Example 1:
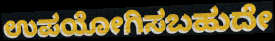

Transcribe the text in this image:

ಉಪಯೋಗಿಸಬಹುದೇ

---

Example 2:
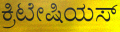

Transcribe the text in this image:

ಕ್ರಿಟೇಷಿಯಸ್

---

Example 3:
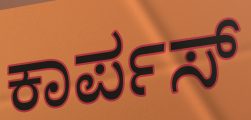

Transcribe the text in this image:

ಕಾರ್ಪಸ್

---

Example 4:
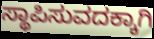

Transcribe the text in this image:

ಸ್ಥಾಪಿಸುವದಕ್ಕಾಗಿ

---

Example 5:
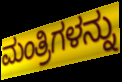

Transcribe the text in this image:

ಮಂತ್ರಿಗಳನ್ನು